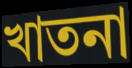
খাতনা